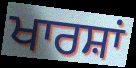
ਖਾਰਸ਼ਾਂ